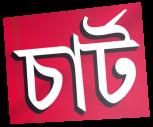
চাৰ্ট